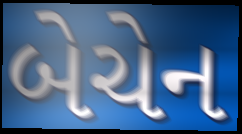
બેચેન